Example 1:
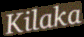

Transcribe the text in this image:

Kilaka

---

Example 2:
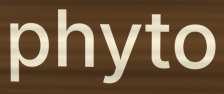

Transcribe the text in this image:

phyto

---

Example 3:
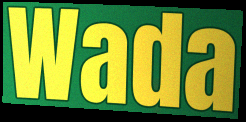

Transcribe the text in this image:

Wada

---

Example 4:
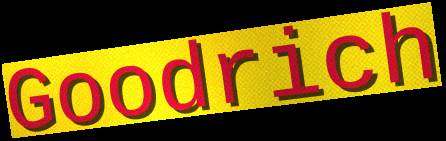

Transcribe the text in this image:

Goodrich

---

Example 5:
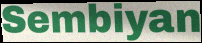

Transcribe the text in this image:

Sembiyan